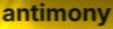
antimony